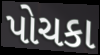
પોચકા